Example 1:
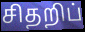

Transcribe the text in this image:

சிதறிப்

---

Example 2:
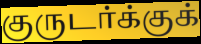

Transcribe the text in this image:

குருடர்க்குக்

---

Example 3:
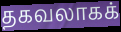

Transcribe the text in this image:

தகவலாகக்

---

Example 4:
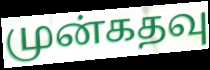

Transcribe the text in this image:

முன்கதவு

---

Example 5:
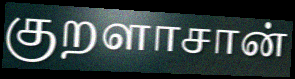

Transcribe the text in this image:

குறளாசான்